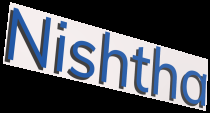
Nishtha